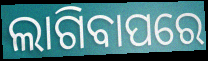
ଲାଗିବାପରେ